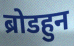
ब्रोडहुन